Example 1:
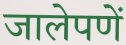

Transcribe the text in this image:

जालेपणें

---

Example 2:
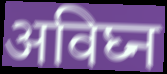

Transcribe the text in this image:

अविघ्न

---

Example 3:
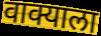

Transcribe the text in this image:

वाक्याला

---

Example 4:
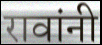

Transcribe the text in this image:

रावांनी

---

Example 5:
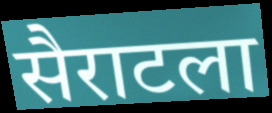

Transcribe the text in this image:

सैराटला